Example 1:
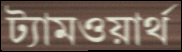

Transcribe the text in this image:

ট্যামওয়ার্থ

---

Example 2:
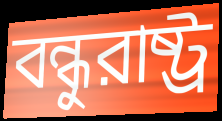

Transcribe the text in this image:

বন্ধুরাষ্ট্র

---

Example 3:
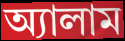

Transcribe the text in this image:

অ্যালাম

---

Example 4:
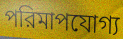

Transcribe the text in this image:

পরিমাপযোগ্য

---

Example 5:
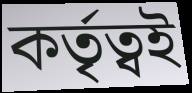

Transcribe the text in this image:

কর্তৃত্বই